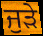
ਜੁੜੇ